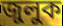
জুলুক